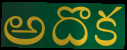
అదొక